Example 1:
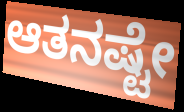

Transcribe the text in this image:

ಆತನಷ್ಟೇ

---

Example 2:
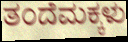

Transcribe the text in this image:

ತಂದೆಮಕ್ಕಳು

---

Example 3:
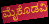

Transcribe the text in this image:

ಮೈಕೊಡವಿ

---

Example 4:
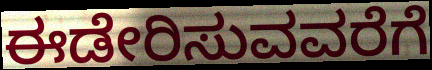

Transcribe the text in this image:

ಈಡೇರಿಸುವವರೆಗೆ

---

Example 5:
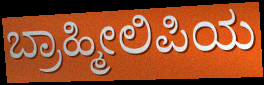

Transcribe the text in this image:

ಬ್ರಾಹ್ಮೀಲಿಪಿಯ